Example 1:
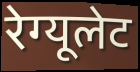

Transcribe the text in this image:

रेग्यूलेट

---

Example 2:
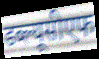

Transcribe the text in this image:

डब्ल्यूसीएफ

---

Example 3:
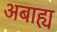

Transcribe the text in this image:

अबाह्य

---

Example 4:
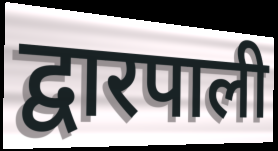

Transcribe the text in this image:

द्वारपाली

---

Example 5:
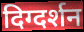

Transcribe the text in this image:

दिग्दर्शन